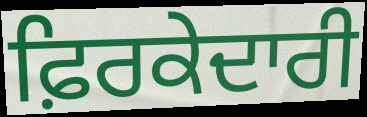
ਫ਼ਿਰਕੇਦਾਰੀ